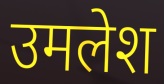
उमलेश